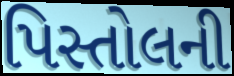
પિસ્તોલની